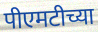
पीएमटीच्या